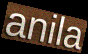
anila